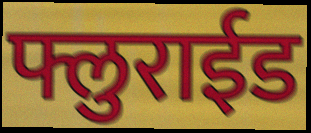
फ्लुराईड